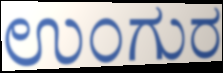
ಉಂಗುರ